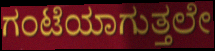
ಗಂಟೆಯಾಗುತ್ತಲೇ